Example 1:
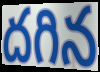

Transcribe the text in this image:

దగిన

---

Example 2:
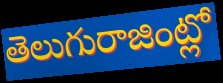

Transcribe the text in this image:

తెలుగురాజింట్లో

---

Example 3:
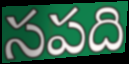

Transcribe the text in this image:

సపది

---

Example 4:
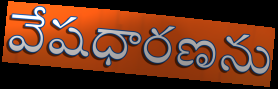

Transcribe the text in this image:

వేషధారణను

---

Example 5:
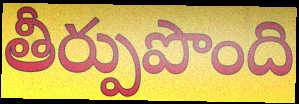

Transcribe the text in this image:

తీర్పుపొంది